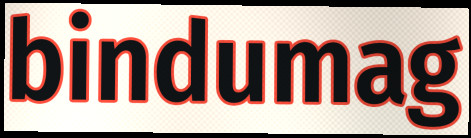
bindumag